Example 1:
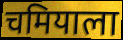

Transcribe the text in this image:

चमियाला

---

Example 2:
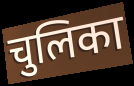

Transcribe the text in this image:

चुलिका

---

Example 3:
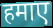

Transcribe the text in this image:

हमाए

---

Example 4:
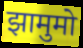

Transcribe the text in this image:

झामुमो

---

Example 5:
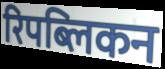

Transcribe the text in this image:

रिपब्लिकन